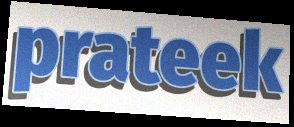
prateek